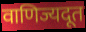
वाणिज्यदूत